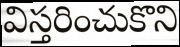
విస్తరించుకొని